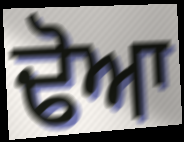
ਢੋਆ